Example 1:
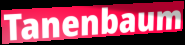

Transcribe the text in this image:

Tanenbaum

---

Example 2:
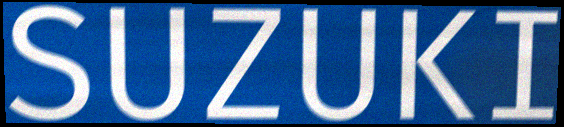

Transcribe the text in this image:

SUZUKI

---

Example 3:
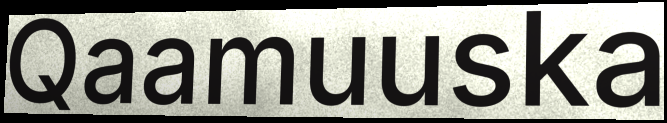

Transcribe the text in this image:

Qaamuuska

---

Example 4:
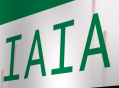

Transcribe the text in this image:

IAIA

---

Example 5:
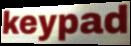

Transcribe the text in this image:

keypad